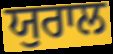
ਯੁਰਾਲ